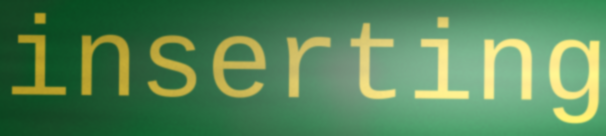
inserting